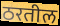
ठरतील